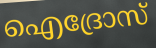
ഐദ്രോസ്